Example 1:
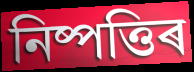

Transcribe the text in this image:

নিষ্পত্তিৰ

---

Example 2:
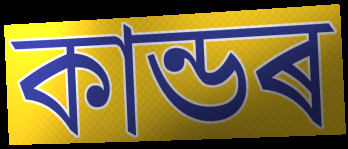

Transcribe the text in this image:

কান্ডৰ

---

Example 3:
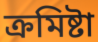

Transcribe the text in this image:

ক্ৰমিষ্টা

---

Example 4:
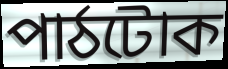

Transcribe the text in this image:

পাঠটোক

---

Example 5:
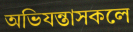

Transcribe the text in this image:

অভিযন্তাসকলে